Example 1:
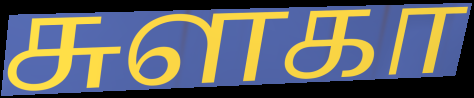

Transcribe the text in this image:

சுளகா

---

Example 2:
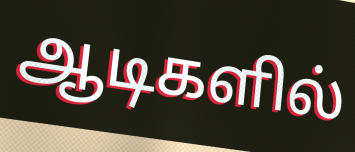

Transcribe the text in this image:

ஆடிகளில்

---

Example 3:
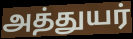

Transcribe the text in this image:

அத்துயர்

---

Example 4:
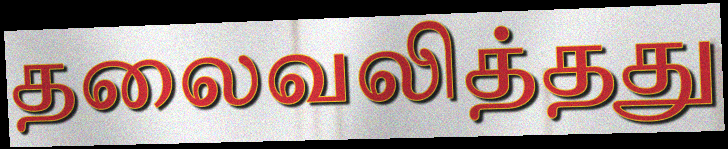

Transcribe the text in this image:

தலைவலித்தது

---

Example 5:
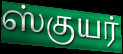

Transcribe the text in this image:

ஸ்குயர்